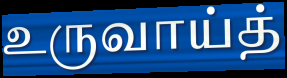
உருவாய்த்